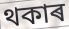
থকাৰ